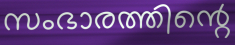
സംഭാരത്തിന്റെ